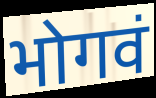
भोगवं